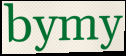
bymy